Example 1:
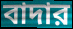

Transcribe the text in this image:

বাদার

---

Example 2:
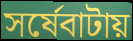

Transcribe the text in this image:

সর্ষেবাটায়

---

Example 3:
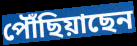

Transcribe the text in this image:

পৌঁছিয়াছেন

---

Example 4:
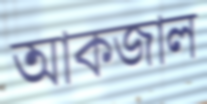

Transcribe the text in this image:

আকজাল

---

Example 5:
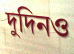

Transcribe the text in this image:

দুদিনও